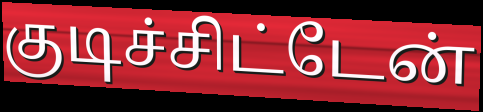
குடிச்சிட்டேன்